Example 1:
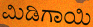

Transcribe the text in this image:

ಮಿಡಿಗಾಯಿ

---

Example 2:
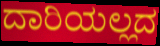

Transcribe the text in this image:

ದಾರಿಯಲ್ಲದ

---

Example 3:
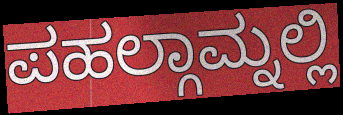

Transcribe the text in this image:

ಪಹಲ್ಗಾಮ್ನಲ್ಲಿ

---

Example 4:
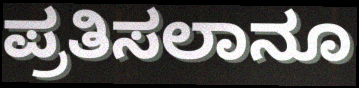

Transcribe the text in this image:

ಪ್ರತಿಸಲಾನೂ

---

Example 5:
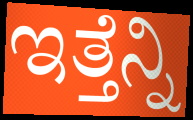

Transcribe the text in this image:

ಇತ್ತೆನ್ನಿ